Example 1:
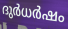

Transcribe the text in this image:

ദുർധർഷം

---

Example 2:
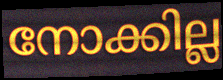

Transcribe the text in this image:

നോക്കില്ല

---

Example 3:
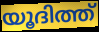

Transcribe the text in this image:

യൂദിത്ത്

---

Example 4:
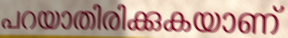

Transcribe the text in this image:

പറയാതിരിക്കുകയാണ്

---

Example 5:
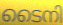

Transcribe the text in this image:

ടൈനി